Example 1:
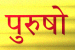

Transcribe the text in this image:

पुरुषो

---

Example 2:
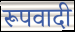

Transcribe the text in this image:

रूपवादी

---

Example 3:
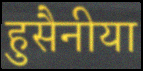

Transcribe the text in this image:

हुसैनीया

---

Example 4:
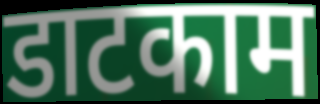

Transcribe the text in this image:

डाटकाम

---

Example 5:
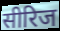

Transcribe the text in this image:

सीरिज